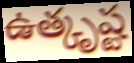
ఉత్కృష్ట